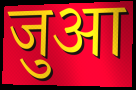
जुआ